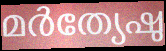
മർത്യേഷു